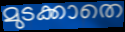
മുടക്കാതെ